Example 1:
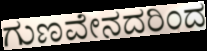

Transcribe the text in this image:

ಗುಣವೇನದರಿಂದ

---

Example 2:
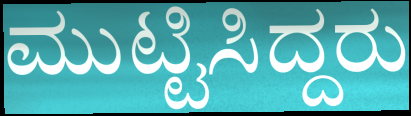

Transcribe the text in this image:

ಮುಟ್ಟಿಸಿದ್ದರು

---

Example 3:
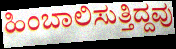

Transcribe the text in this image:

ಹಿಂಬಾಲಿಸುತ್ತಿದ್ದವು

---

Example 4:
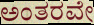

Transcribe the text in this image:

ಅಂತರವೇ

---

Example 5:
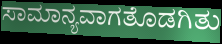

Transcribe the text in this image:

ಸಾಮಾನ್ಯವಾಗತೊಡಗಿತು